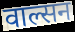
वाल्सन